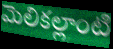
మెలికల్లాంటి